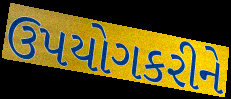
ઉપયોગકરીને